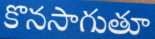
కొనసాగుతూ